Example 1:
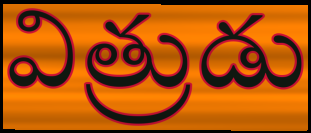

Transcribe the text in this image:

విత్రుడు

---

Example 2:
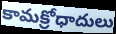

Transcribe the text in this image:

కామక్రోధాదులు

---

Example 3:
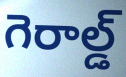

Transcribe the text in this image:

గెరాల్డ్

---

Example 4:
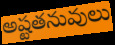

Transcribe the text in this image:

అష్టతనువులు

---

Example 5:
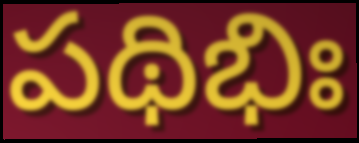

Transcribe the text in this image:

పథిభిః